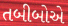
તબીબોએ